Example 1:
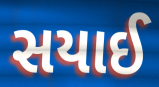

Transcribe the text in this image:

સયાઈ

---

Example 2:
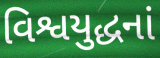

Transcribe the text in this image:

વિશ્વયુદ્ધનાં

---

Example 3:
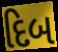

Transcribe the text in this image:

દિબ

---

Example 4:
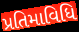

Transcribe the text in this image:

પ્રતિમાવિધિ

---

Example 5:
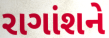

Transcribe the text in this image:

રાગાંશને